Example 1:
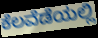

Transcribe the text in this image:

ಕೆಲವೆಡೆಯಲ್ಲಿ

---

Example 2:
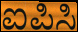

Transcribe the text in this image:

ಐಪಿಸಿ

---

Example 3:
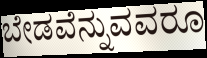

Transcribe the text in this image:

ಬೇಡವೆನ್ನುವವರೂ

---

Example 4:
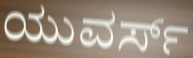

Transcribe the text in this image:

ಯುವರ್ಸ್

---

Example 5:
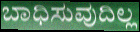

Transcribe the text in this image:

ಬಾಧಿಸುವುದಿಲ್ಲ